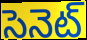
సెనెట్